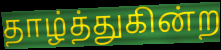
தாழ்த்துகின்ற